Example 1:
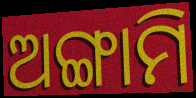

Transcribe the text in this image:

ଅଙ୍ଗାମି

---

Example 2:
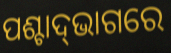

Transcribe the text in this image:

ପଶ୍ଚାଦ୍‌ଭାଗରେ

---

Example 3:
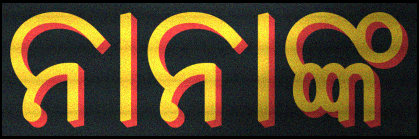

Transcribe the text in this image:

ନାନାଙ୍କ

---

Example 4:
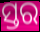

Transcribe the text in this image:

ସ୍ତର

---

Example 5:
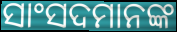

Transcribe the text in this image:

ସାଂସଦମାନଙ୍କ